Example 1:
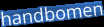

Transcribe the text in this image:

handbomen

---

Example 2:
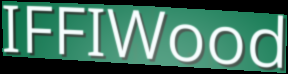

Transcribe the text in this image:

IFFIWood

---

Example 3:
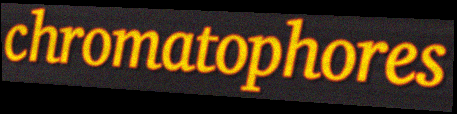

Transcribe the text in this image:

chromatophores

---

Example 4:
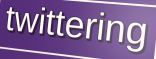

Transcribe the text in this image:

twittering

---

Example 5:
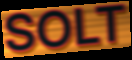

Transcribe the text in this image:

SOLT